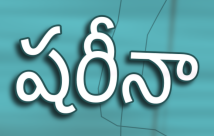
షరీనా